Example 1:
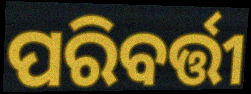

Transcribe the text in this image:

ପରିବର୍ତ୍ତୀ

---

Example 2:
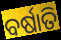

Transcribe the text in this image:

ବର୍ଷାତି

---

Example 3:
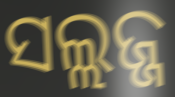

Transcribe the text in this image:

ସଲ୍ଲଜ୍ଜ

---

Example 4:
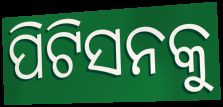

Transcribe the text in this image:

ପିଟିସନକୁ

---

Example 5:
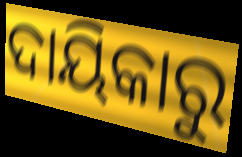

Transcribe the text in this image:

ଦାୟିକାରୁ